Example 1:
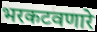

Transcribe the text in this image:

भरकटवणारे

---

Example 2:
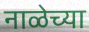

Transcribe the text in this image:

नाळेच्या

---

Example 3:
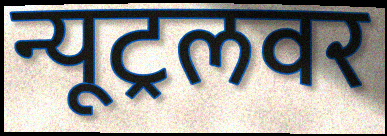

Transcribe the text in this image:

न्यूट्रलवर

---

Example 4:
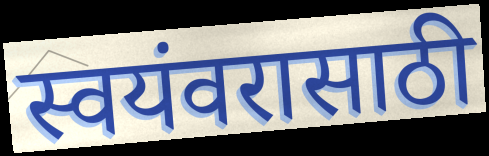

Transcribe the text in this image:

स्वयंवरासाठी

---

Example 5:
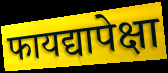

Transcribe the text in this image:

फायद्यापेक्षा